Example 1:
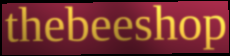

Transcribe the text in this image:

thebeeshop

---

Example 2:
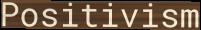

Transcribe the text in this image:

Positivism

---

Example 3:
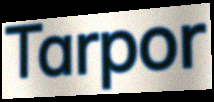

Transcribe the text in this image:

Tarpor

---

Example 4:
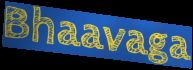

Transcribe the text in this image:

Bhaavaga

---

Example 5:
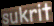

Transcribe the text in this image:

sukrit